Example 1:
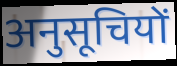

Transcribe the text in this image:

अनुसूचियों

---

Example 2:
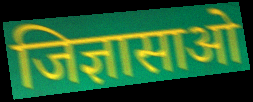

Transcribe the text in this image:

जिज्ञासाओ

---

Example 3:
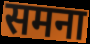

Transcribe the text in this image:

समना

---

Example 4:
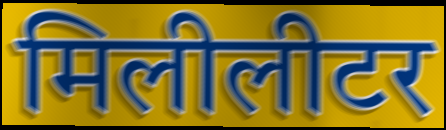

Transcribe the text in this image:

मिलीलीटर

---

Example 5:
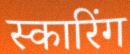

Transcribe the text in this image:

स्कारिंग